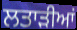
ਲਤਾੜੀਆਂ